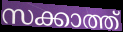
സക്കാത്ത്